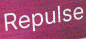
Repulse